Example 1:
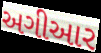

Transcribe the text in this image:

અગીઆર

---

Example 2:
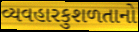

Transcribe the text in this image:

વ્યવહારકુશળતાનો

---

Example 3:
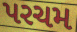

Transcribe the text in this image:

પરચમ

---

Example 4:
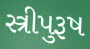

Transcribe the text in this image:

સ્ત્રીપુરૂષ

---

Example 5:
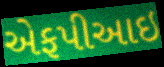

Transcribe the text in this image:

એફપીઆઇ